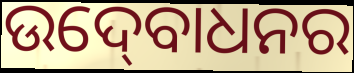
ଉଦ୍‍ବୋଧନର